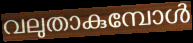
വലുതാകുമ്പോൾ